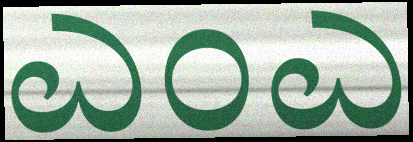
ಎಂಎ